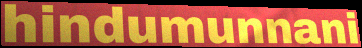
hindumunnani